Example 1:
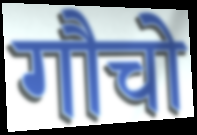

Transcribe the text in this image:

गौचो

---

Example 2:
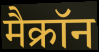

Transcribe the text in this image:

मैक्रॉन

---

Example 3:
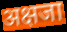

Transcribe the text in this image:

अक्षजा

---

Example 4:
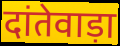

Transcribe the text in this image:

दांतेवाड़ा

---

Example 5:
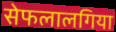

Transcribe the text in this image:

सेफलालगिया